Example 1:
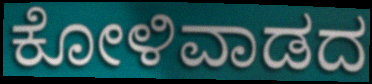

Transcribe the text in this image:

ಕೋಳಿವಾಡದ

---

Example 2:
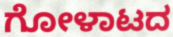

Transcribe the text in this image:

ಗೋಳಾಟದ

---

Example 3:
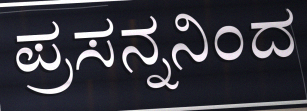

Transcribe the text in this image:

ಪ್ರಸನ್ನನಿಂದ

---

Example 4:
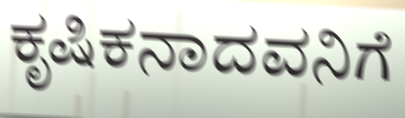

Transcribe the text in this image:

ಕೃಷಿಕನಾದವನಿಗೆ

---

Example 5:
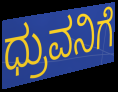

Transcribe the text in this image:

ಧ್ರುವನಿಗೆ